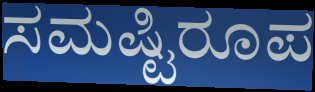
ಸಮಷ್ಟಿರೂಪ